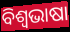
ବିଶ୍ୱଭାଷା